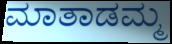
ಮಾತಾಡಮ್ಮ